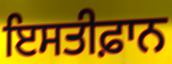
ਇਸਤੀਫ਼ਾਨ